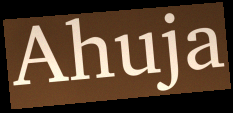
Ahuja